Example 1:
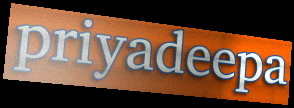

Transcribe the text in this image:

priyadeepa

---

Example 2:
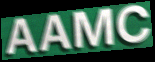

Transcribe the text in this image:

AAMC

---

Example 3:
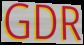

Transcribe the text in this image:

GDR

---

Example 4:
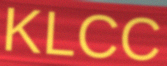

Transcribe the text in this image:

KLCC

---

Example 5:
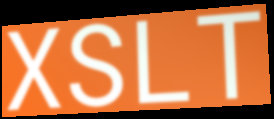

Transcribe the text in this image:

XSLT